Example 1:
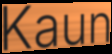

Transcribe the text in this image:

Kaun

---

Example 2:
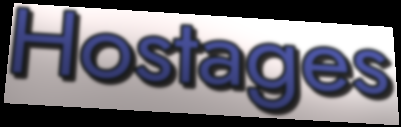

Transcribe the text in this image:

Hostages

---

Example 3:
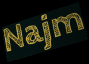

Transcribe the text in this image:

Najm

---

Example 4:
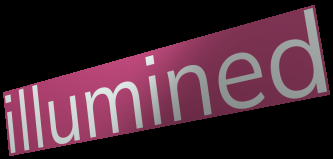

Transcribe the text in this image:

illumined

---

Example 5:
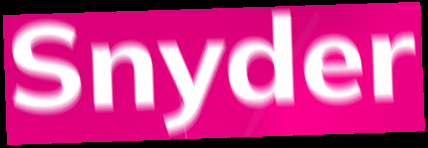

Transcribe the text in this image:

Snyder